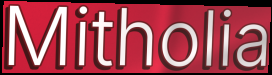
Mitholia